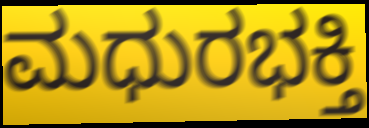
ಮಧುರಭಕ್ತಿ